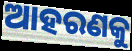
ଆହରଣକୁ